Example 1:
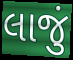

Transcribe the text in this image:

લાજું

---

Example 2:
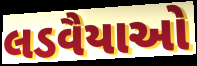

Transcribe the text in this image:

લડવૈયાઓ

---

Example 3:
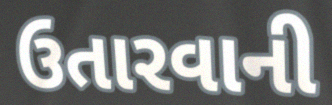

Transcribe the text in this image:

ઉતારવાની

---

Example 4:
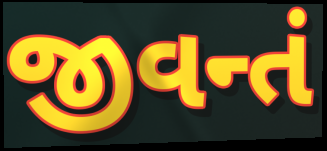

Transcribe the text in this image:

જીવન્તં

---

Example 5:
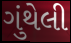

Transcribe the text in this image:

ગુંથેલી